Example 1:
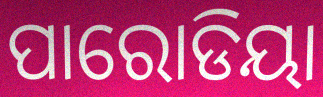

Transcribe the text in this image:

ପାରୋଡିୟା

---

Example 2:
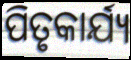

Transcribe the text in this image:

ପିତୃକାର୍ଯ୍ୟ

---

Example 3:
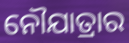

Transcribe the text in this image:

ନୌଯାତ୍ରାର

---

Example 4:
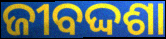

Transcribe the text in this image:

ଜୀବଦ୍ଦଶା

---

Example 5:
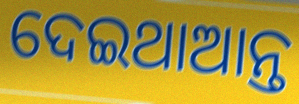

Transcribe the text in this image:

ଦେଇଥାଆନ୍ତ